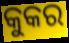
କୁକର